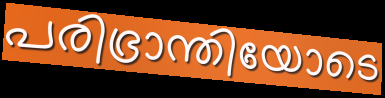
പരിഭ്രാന്തിയോടെ